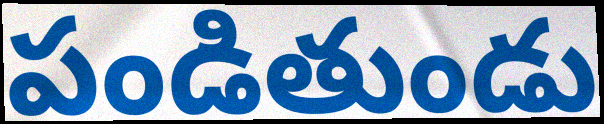
పండితుండు